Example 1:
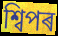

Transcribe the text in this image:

শ্বিপৰ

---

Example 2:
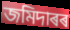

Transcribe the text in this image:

জমিদাৰৰ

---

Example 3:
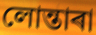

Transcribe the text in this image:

লোন্তাৰা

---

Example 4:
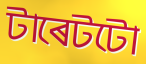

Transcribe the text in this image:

টাৰেটটো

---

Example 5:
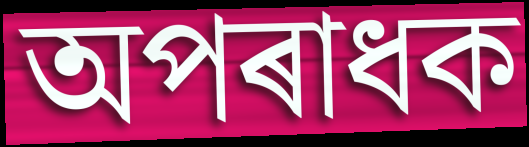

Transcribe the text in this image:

অপৰাধক